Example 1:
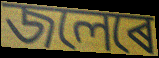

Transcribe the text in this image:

জলেৰে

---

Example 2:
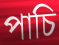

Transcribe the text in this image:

পাচি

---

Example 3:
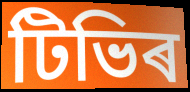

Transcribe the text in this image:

টিভিৰ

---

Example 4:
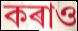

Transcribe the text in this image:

কৰাও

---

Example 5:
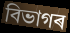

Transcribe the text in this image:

বিভাগৰ